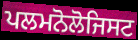
ਪਲਮਨੋਲੋਜਿਸਟ